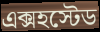
এক্সহস্টেড